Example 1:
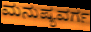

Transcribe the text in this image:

ಮನುಷ್ಯವರ್ಗ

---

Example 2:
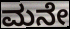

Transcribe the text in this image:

ಮನೇ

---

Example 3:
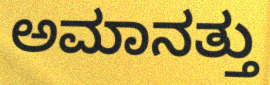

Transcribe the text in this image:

ಅಮಾನತ್ತು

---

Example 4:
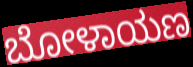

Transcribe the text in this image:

ಬೋಳಾಯಣ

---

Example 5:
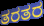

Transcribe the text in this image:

ತರತರ